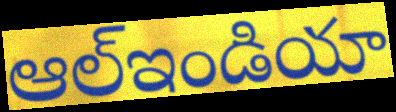
ఆల్ఇండియా